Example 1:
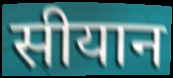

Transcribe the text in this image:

सीयान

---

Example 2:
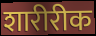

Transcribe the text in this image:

शारीरीक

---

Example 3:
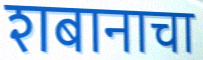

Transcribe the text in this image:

शबानाचा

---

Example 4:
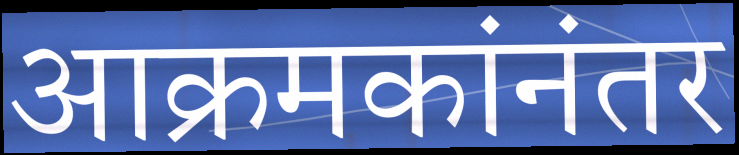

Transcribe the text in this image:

आक्रमकांनंतर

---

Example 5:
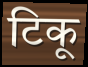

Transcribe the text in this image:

टिकू